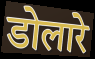
डोलारे